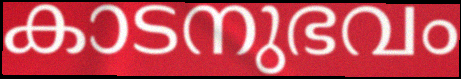
കാടനുഭവം